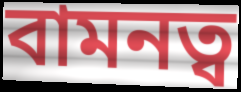
বামনত্ব